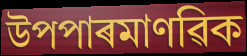
উপপাৰমাণৱিক